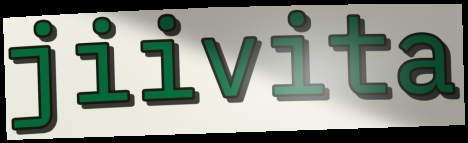
jiivita